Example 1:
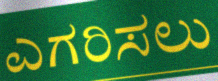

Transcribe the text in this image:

ಎಗರಿಸಲು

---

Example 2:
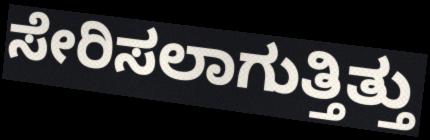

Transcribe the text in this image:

ಸೇರಿಸಲಾಗುತ್ತಿತ್ತು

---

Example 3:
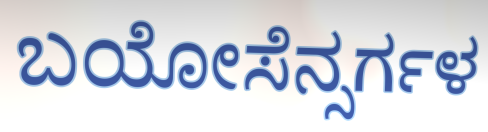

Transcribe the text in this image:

ಬಯೋಸೆನ್ಸರ್ಗಳ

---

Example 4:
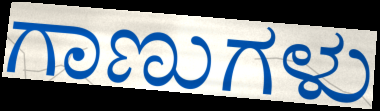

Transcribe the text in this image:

ಗಾಣುಗಳು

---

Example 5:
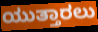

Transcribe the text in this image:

ಯುತ್ತಾರಲು